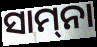
ସାମ୍‍ନା